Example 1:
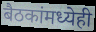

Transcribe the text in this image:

बैठकांमध्येही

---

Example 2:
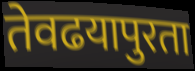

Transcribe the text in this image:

तेवढयापुरता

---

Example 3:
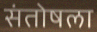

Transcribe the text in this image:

संतोषला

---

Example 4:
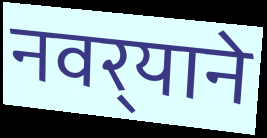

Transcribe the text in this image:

नवर्‍याने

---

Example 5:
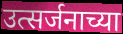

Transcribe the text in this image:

उत्सर्जनाच्या